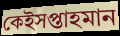
কেইসপ্তাহমান